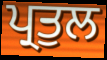
ਪ੍ਰਤੁਲ